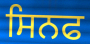
ਸਿਨਫ